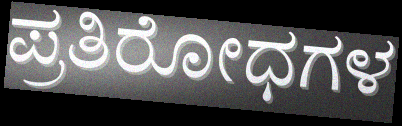
ಪ್ರತಿರೋಧಗಳ